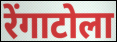
रेंगाटोला